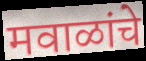
मवाळांचे